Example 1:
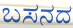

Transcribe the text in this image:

ಬಸನದ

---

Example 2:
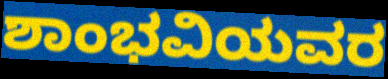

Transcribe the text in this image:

ಶಾಂಭವಿಯವರ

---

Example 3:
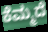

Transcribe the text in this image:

ಕೆಮ್ಮದೆ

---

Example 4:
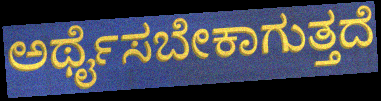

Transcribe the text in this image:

ಅರ್ಥೈಸಬೇಕಾಗುತ್ತದೆ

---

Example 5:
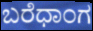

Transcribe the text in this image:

ಬರೆಧಾಂಗ